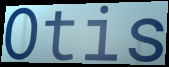
Otis